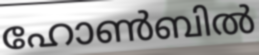
ഹോൺബിൽ